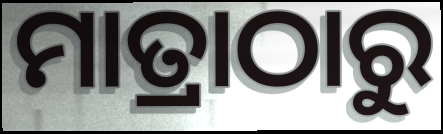
ମାତ୍ରାଠାରୁ